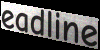
eadline